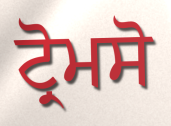
ਟ੍ਰੋਮਸੋ